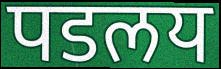
पडलय